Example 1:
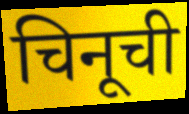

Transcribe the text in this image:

चिनूची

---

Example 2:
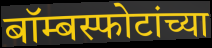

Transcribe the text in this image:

बॉम्बस्फोटांच्या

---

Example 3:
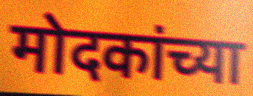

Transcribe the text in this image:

मोदकांच्या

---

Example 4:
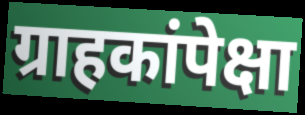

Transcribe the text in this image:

ग्राहकांपेक्षा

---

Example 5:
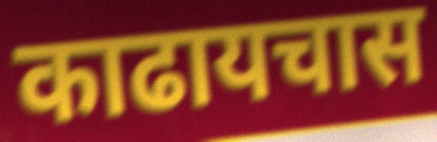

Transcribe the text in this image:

काढायचास